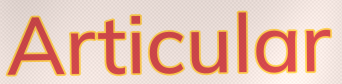
Articular